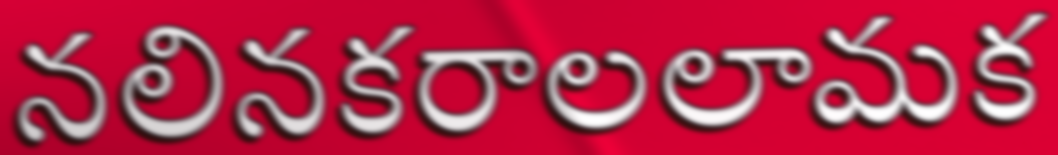
నలినకరాలలామక